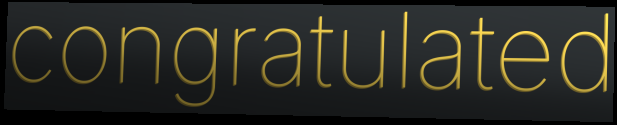
congratulated